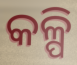
କଳ୍ପି